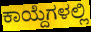
ಕಾಯ್ದೆಗಳಲ್ಲಿ